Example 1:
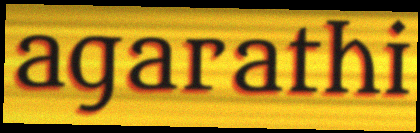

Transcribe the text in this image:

agarathi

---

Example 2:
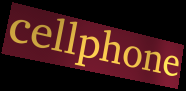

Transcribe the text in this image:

cellphone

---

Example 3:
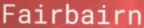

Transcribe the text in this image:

Fairbairn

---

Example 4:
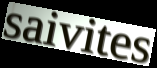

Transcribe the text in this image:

saivites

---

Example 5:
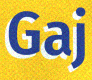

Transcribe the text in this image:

Gaj